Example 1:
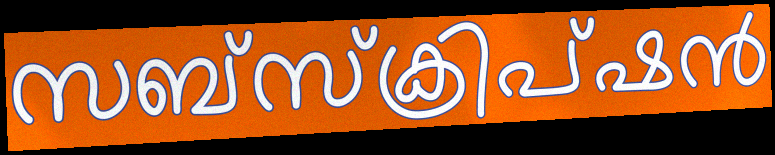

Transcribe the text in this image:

സബ്സ്ക്രിപ്ഷൻ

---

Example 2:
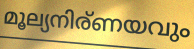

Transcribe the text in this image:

മൂല്യനിര്ണയവും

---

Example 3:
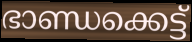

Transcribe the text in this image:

ഭാണ്ഡക്കെട്ട്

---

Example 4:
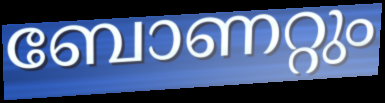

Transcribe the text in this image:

ബോണറ്റും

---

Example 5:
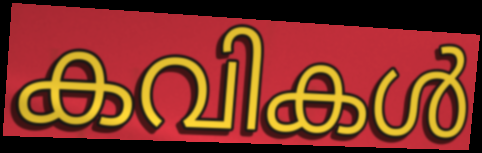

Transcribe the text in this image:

കവികൾ